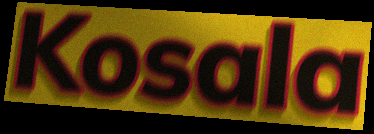
Kosala